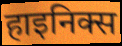
हाइनिक्स